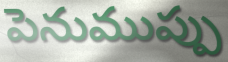
పెనుముప్పు